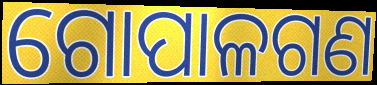
ଗୋପାଳଗଣ